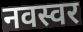
नवस्वर